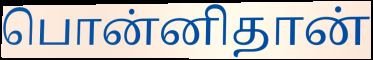
பொன்னிதான்